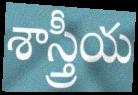
శాస్త్రీయ